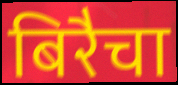
बिरैचा